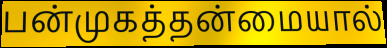
பன்முகத்தன்மையால்